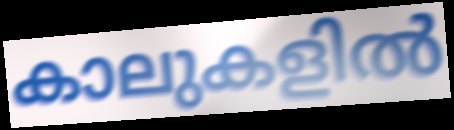
കാലുകളിൽ